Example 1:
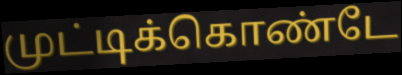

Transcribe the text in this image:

முட்டிக்கொண்டே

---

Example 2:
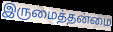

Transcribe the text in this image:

இருமைத்தன்மை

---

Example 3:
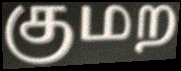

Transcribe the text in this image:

குமற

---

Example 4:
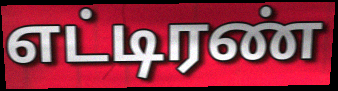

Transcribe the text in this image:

எட்டிரண்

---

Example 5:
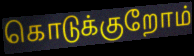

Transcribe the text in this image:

கொடுக்குறோம்